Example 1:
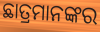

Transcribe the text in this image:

ଛାତ୍ରମାନଙ୍କର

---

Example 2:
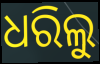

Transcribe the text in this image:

ଧରିଲୁ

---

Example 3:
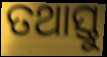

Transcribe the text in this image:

ତଥାସ୍ତୁ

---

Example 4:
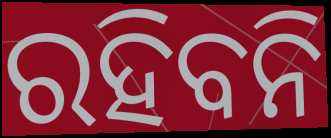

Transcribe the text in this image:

ରହିବନି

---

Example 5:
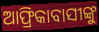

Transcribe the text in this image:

ଆଫ୍ରିକାବାସୀଙ୍କୁ